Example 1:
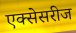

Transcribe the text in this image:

एक्सेसरीज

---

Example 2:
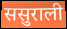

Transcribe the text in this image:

ससुराली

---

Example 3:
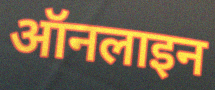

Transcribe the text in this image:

ऑनलाइन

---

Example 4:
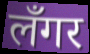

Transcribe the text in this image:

लँगर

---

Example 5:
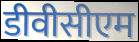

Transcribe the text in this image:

डीवीसीएम